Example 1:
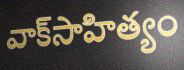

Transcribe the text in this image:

వాక్‌సాహిత్యం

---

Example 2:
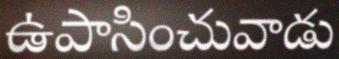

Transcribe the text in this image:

ఉపాసించువాడు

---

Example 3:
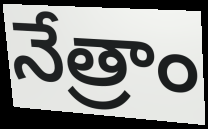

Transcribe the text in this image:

నేత్రాం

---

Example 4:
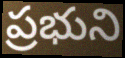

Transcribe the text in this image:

ప్రభుని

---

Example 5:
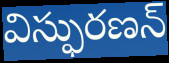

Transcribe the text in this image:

విస్ఫురణన్